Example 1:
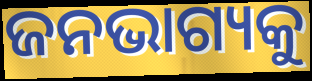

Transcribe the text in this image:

ଜନଭାଗ୍ୟକୁ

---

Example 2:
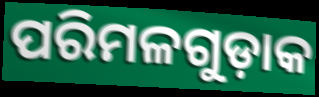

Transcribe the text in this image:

ପରିମଳଗୁଡ଼ାକ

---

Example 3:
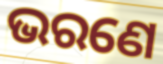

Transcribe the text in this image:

ଭରଣେ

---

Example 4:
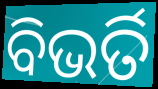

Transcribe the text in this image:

ବିଭର୍ତି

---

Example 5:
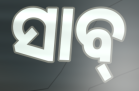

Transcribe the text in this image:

ସାବ୍